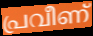
പ്രവീണ്